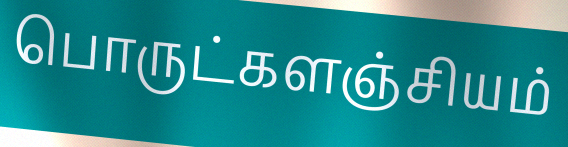
பொருட்களஞ்சியம்